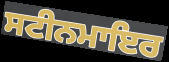
ਸਟੀਨਮਾਇਰ